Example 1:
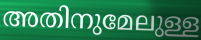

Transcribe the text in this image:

അതിനുമേലുള്ള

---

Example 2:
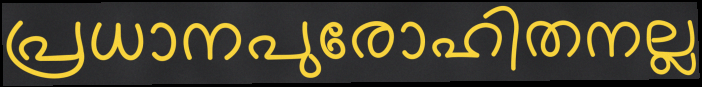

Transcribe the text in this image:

പ്രധാനപുരോഹിതനല്ല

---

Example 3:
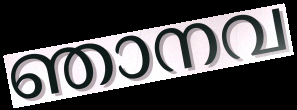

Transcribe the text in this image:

ഞാനവ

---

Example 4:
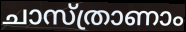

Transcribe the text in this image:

ചാസ്ത്രാണാം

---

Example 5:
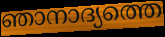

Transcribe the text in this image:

ഞാനാദ്യത്തെ